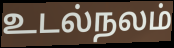
உடல்நலம்